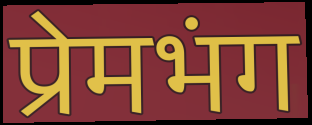
प्रेमभंग